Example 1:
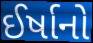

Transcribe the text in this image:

ઈર્ષાનો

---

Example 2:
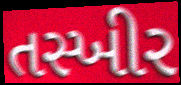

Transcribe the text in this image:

તસ્ખીર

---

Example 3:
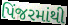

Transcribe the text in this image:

પિંજરમાંથી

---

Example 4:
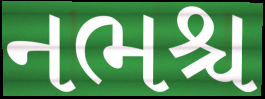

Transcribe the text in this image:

નભશ્ચ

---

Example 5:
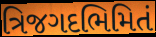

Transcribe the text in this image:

ત્રિજગદભિમિતં